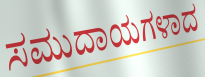
ಸಮುದಾಯಗಳಾದ